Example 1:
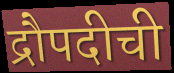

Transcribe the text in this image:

द्रौपदीची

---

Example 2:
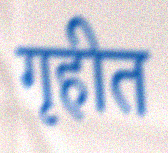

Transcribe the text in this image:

गृहीत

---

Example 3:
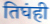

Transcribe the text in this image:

तिघंही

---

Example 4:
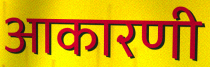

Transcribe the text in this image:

आकारणी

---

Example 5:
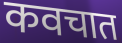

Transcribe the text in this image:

कवचात